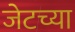
जेटच्या